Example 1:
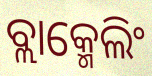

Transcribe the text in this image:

ବ୍ଲାକ୍ମେଲିଂ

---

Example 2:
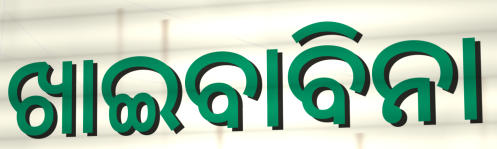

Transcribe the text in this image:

ଖାଇବାବିନା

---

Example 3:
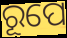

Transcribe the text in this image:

ରୂପେ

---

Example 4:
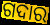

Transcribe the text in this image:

ଗଦାର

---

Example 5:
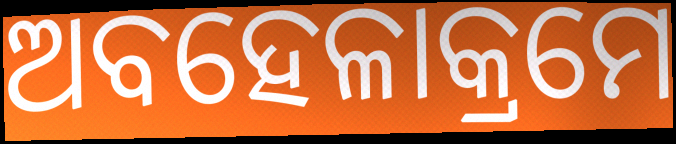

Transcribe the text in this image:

ଅବହେଳାକ୍ରମେ